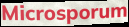
Microsporum